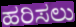
ಹರಿಸಲು